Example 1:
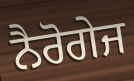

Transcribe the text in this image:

ਨੈਰੋਗੇਜ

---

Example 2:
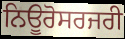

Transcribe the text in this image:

ਨਿਊਰੋਸਰਜਰੀ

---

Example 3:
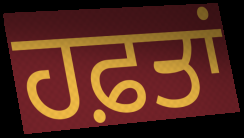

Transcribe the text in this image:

ਹਫ਼ਤਾਂ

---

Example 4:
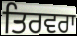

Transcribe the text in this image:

ਤਿਰਵਰਾ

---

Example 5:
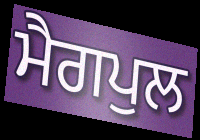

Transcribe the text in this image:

ਮੈਗਪੁਲ